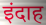
इंदाह